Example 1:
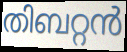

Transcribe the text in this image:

തിബറ്റൻ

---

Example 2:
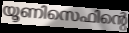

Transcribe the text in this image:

യൂണിസെഫിന്റെ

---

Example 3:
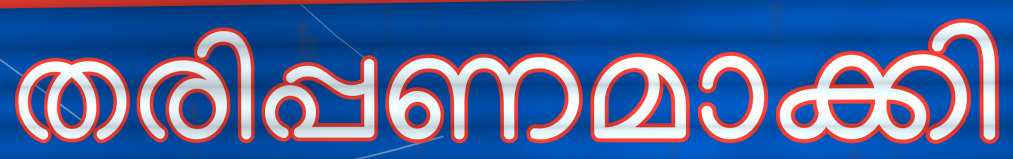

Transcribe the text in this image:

തരിപ്പണമാക്കി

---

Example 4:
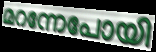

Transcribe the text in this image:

മറന്നേപോയി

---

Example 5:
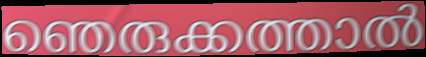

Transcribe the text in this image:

ഞെരുക്കത്താൽ